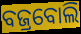
ବଜ୍ରବୋଲି